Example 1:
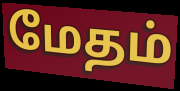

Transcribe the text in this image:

மேதம்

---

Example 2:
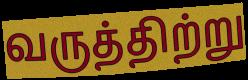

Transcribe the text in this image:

வருத்திற்று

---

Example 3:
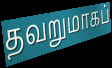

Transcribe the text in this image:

தவறுமாகப்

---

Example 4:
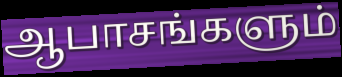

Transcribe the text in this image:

ஆபாசங்களும்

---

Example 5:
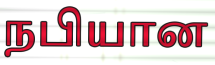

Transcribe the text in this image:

நபியான